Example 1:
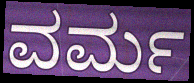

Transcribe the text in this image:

ವರ್ಮ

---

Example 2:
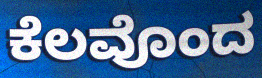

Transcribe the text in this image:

ಕೆಲವೊಂದ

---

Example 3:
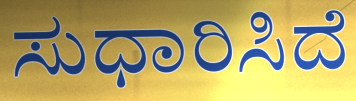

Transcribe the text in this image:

ಸುಧಾರಿಸಿದೆ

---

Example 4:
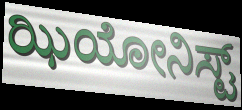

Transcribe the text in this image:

ಝಿಯೋನಿಸ್ಟ್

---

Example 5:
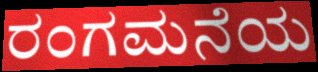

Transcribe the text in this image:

ರಂಗಮನೆಯ